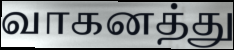
வாகனத்து